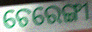
ଚେରେଙ୍ଗୀ